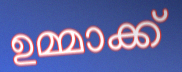
ഉമ്മാക്ക്